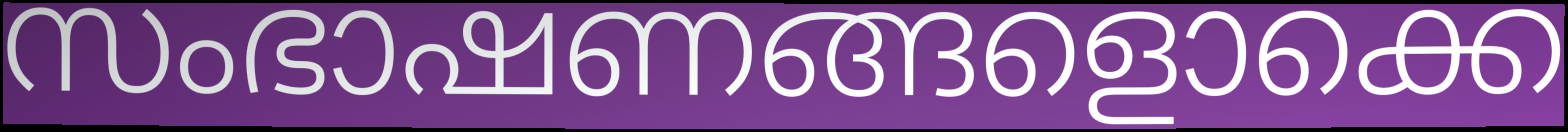
സംഭാഷണങ്ങളൊക്കെ